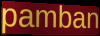
pamban